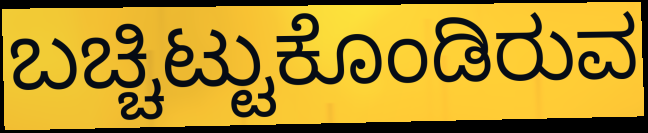
ಬಚ್ಚಿಟ್ಟುಕೊಂಡಿರುವ